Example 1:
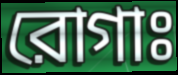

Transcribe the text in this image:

রোগাঃ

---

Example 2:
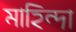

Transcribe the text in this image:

মাহিন্দা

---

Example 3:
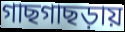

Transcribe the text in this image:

গাছগাছড়ায়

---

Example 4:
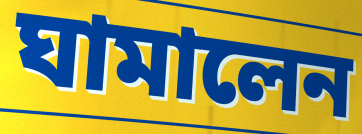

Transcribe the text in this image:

ঘামালেন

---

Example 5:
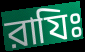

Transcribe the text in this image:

রাযিঃ